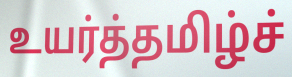
உயர்த்தமிழ்ச்